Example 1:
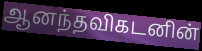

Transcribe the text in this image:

ஆனந்தவிகடனின்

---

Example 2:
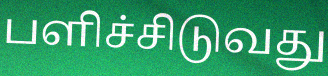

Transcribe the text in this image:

பளிச்சிடுவது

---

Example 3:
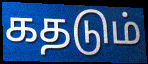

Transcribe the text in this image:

கதடும்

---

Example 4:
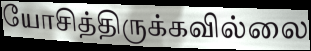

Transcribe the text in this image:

யோசித்திருக்கவில்லை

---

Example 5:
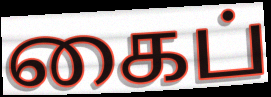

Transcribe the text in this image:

கைப்